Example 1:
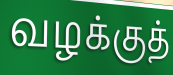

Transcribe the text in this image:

வழக்குத்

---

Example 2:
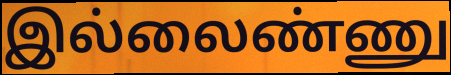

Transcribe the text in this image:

இல்லைண்ணு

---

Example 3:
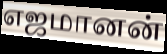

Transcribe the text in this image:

எஜமானன்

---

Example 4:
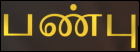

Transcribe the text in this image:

பண்பு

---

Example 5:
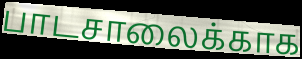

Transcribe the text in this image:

பாடசாலைக்காக